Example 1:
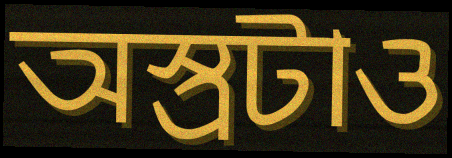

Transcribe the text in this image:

অস্ত্রটাও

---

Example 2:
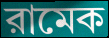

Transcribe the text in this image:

রামেক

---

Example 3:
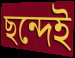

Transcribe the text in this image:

ছন্দেই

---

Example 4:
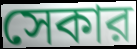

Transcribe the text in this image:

সেকার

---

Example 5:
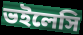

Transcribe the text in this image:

ভইলেসি